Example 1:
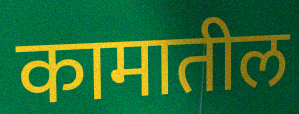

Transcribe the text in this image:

कामातील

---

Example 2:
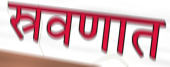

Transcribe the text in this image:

स्रवणात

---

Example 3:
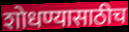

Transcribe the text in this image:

शोधण्यासाठीच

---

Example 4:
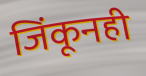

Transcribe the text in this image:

जिंकूनही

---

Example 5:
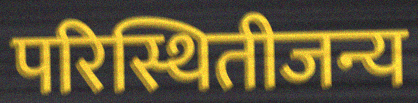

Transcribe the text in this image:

परिस्थितीजन्य